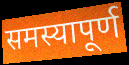
समस्यापूर्ण